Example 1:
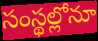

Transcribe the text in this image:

సంస్థల్లోనూ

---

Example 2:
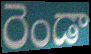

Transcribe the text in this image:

రెండా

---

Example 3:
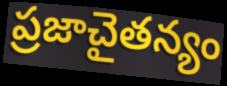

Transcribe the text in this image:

ప్రజాచైతన్యం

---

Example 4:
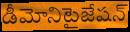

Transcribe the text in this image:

డీమోనిటైజేషన్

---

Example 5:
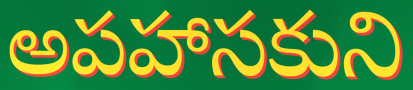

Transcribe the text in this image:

అపహాసకుని